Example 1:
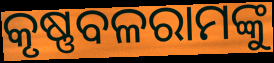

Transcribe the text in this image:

କୃଷ୍ଣବଳରାମଙ୍କୁ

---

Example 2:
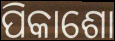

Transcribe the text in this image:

ପିକାଶୋ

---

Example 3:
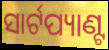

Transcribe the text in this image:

ସାର୍ଟପ୍ୟାଣ୍ଟ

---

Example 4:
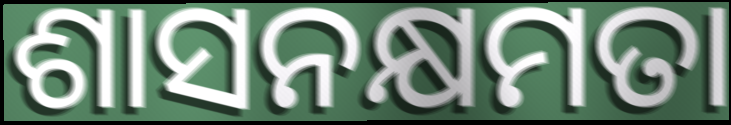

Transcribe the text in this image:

ଶାସନକ୍ଷମତା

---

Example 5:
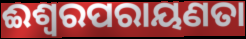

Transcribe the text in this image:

ଈଶ୍ୱରପରାୟଣତା